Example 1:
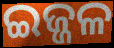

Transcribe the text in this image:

ଇଜ୍ଜଳ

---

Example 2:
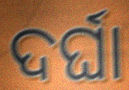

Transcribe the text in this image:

ଦର୍ଘା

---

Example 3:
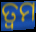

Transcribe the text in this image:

ତ୍ୱମ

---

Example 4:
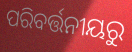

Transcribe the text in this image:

ପରିବର୍ତ୍ତନୀୟରୁ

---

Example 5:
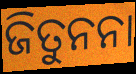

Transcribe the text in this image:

ଜିତୁନନା